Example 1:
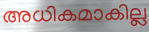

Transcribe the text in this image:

അധികമാകില്ല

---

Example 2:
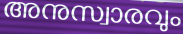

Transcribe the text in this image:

അനുസ്വാരവും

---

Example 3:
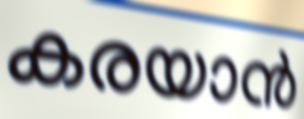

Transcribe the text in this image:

കരയാൻ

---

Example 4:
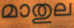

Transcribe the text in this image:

മാതുല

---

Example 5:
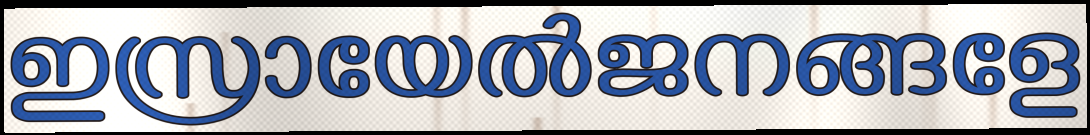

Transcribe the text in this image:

ഇസ്രായേൽജനങ്ങളേ